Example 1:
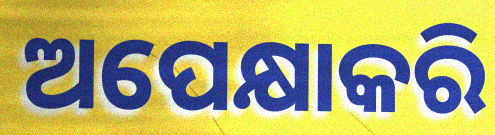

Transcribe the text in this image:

ଅପେକ୍ଷାକରି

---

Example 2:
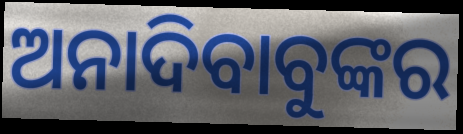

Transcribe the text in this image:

ଅନାଦିବାବୁଙ୍କର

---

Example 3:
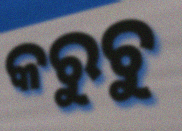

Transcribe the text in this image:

କରୁଚୁ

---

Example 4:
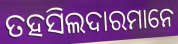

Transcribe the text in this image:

ତହସିଲଦାରମାନେ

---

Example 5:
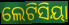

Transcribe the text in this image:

ଲେଟିସିୟା